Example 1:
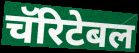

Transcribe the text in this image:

चॅरिटेबल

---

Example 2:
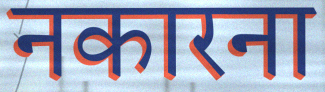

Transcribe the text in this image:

नकारना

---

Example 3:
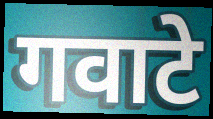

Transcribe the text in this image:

गवाटे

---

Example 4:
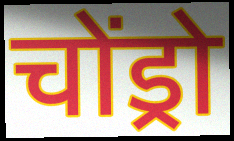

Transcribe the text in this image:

चोंड्रो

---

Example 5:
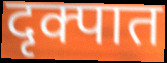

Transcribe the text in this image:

दृक्पात